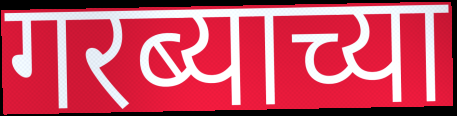
गरब्याच्या